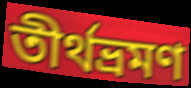
তীৰ্থভ্ৰমণ